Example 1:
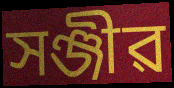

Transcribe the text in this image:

সঞ্জীৱ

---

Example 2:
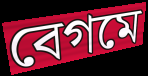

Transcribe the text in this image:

বেগমে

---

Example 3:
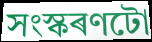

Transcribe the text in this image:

সংস্কৰণটো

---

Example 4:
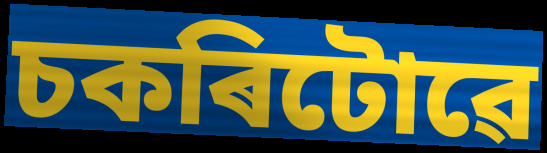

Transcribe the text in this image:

চকৰিটোৱে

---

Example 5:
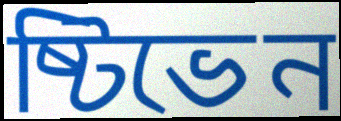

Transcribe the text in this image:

ষ্টিভেন